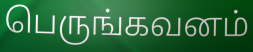
பெருங்கவனம்